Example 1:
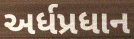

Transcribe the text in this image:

અર્ધપ્રધાન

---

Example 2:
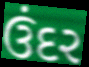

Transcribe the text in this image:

ઉંદર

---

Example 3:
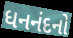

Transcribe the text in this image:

ધનનંદનો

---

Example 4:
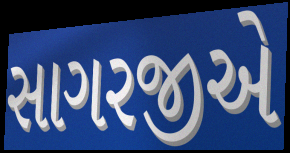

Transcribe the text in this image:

સાગરજીએ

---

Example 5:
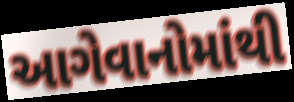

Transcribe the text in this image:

આગેવાનોમાંથી